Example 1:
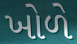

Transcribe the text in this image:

ખોળે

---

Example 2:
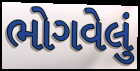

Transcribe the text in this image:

ભોગવેલું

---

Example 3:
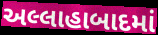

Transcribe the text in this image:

અલ્લાહાબાદમાં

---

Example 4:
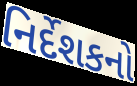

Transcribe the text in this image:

નિર્દેશકનો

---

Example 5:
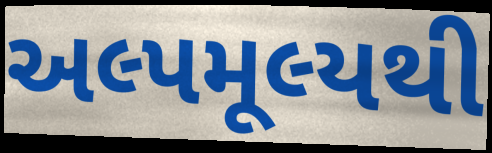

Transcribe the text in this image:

અલ્પમૂલ્યથી